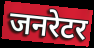
जनरेटर